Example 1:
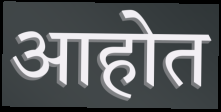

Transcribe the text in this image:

आहोत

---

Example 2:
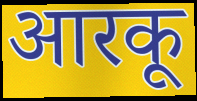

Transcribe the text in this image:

आरकू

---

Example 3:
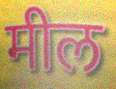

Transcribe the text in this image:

मील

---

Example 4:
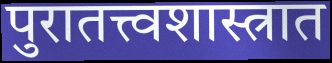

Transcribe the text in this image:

पुरातत्त्वशास्त्रात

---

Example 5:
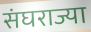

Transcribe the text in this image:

संघराज्या